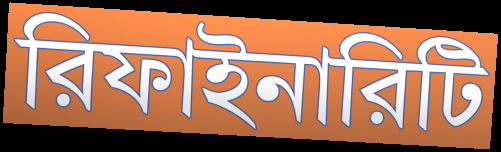
রিফাইনারিটি